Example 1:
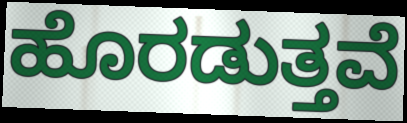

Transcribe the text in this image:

ಹೊರಡುತ್ತವೆ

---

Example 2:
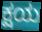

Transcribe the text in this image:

ಕ್ಷಯ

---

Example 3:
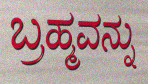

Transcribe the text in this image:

ಬ್ರಹ್ಮವನ್ನು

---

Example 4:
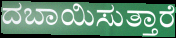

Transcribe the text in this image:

ದಬಾಯಿಸುತ್ತಾರೆ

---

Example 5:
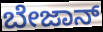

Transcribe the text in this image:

ಬೇಜಾನ್